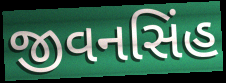
જીવનસિંહ